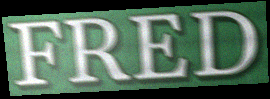
FRED